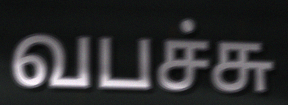
வபச்சு